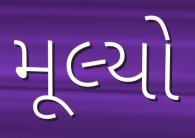
મૂલ્યો